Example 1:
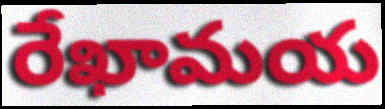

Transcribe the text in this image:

రేఖామయ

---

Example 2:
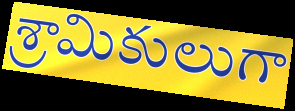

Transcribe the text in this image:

శ్రామికులుగా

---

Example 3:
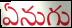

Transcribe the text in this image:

ఏనుగు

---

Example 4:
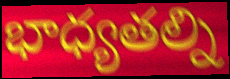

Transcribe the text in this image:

భాధ్యతల్ని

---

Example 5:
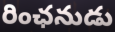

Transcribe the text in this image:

రింఛనుడు